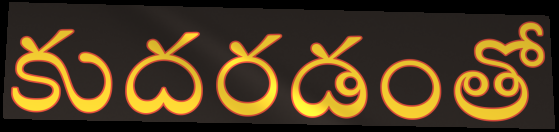
కుదరడంతో